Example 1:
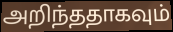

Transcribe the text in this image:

அறிந்ததாகவும்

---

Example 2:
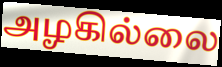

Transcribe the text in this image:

அழகில்லை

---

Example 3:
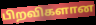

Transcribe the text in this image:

பிறவிகளான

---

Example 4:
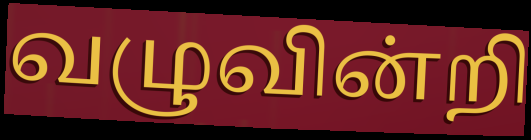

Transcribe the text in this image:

வழுவின்றி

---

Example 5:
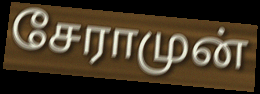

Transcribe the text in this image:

சேராமுன்